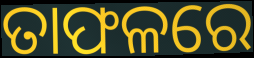
ତାଫଳରେ